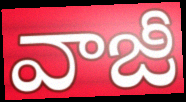
వాజీ